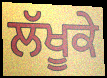
ਲੱਖੂਕੇ